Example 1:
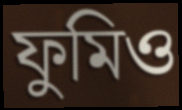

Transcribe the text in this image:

ফুমিও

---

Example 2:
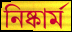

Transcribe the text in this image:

নিষ্কার্ম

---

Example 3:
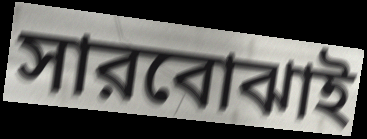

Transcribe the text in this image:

সারবোঝাই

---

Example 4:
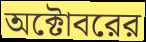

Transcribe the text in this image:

অক্টোবরের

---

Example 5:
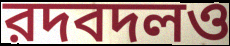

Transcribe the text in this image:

রদবদলও